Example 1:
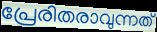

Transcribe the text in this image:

പ്രേരിതരാവുന്നത്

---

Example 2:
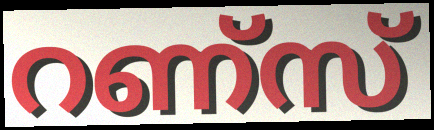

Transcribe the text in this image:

റണ്സ്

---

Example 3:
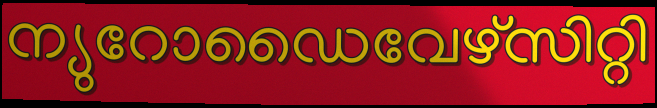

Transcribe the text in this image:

ന്യുറോഡൈവേഴ്സിറ്റി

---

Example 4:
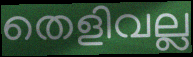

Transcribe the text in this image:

തെളിവല്ല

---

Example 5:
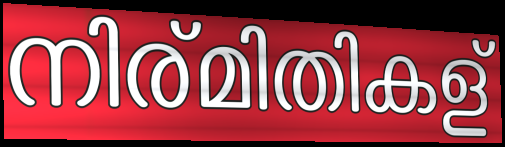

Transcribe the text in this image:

നിര്മിതികള്